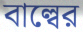
বাল্বের